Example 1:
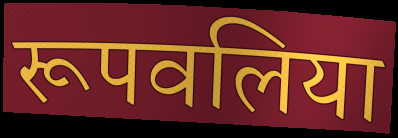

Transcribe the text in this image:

रूपवलिया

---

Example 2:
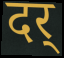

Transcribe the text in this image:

दर्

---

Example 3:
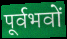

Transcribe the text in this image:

पूर्वभवों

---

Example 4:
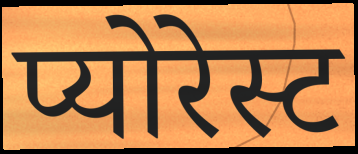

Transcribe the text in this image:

प्योरेस्ट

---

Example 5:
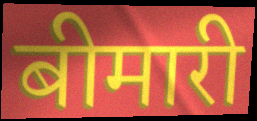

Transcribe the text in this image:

बीमारी